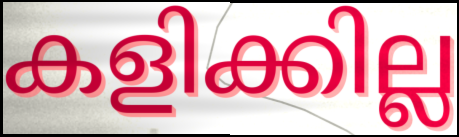
കളിക്കില്ല